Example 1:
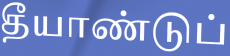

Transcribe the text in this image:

தீயாண்டுப்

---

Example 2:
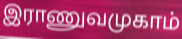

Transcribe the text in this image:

இராணுவமுகாம்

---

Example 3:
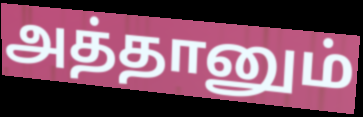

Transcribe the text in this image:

அத்தானும்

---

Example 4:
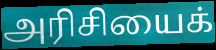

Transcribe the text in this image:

அரிசியைக்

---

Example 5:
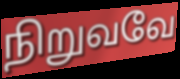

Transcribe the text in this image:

நிறுவவே